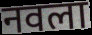
नवला